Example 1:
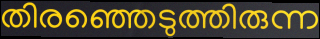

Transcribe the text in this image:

തിരഞ്ഞെടുത്തിരുന്ന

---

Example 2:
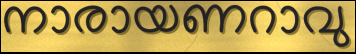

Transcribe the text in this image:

നാരായണറാവു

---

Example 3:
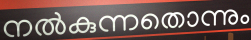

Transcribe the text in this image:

നൽകുന്നതൊന്നും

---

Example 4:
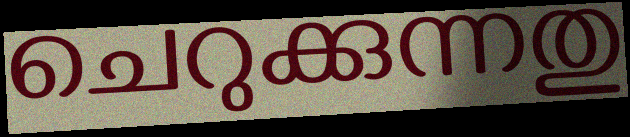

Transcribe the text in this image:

ചെറുക്കുന്നതു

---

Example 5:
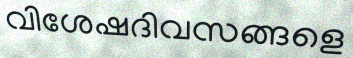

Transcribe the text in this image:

വിശേഷദിവസങ്ങളെ